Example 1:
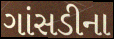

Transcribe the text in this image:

ગાંસડીના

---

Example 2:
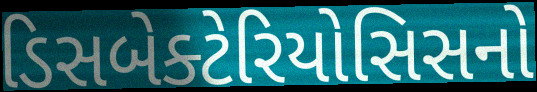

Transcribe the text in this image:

ડિસબેક્ટેરિયોસિસનો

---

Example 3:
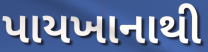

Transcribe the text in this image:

પાયખાનાથી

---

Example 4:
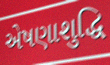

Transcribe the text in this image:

એષણાશુદ્ધિ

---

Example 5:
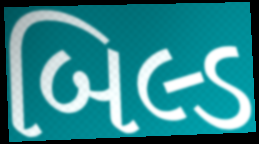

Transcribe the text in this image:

બિલ્ડ